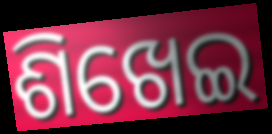
ଶିଖେଇ